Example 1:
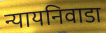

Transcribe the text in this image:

न्यायनिवाडा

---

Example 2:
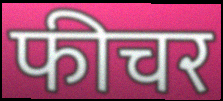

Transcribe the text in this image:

फीचर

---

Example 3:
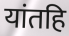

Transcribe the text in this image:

यांतहि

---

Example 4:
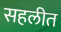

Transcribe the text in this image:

सहलीत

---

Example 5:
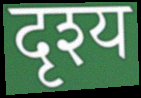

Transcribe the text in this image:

दृश्य